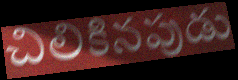
చిలికినపుడు